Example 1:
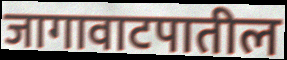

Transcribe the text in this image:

जागावाटपातील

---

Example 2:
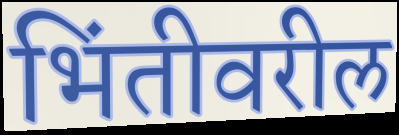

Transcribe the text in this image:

भिंतीवरील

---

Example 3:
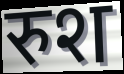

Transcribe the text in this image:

रुश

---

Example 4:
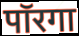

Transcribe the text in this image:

पॉरगा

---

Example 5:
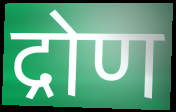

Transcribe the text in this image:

द्रोण